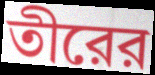
তীরের